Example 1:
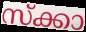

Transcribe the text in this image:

സ്ക്കാ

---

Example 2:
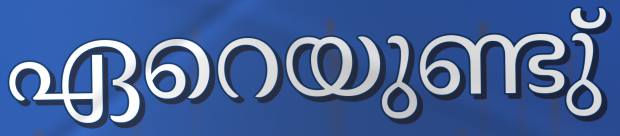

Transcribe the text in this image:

ഏറെയുണ്ടു്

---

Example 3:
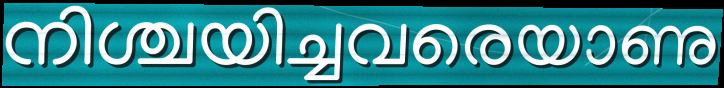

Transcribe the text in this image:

നിശ്ചയിച്ചവരെയാണു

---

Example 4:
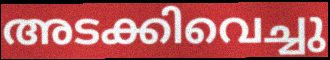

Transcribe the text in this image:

അടക്കിവെച്ചു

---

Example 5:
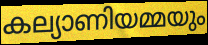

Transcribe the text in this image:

കല്യാണിയമ്മയും